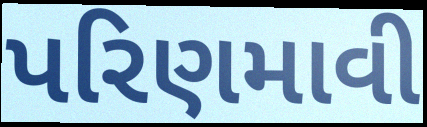
પરિણમાવી